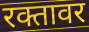
रक्तावर